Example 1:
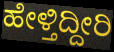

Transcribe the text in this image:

ಹೇಳ್ತಿದ್ದೀರಿ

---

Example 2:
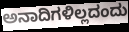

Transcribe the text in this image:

ಅನಾದಿಗಳಿಲ್ಲದಂದು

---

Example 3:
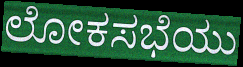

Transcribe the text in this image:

ಲೋಕಸಭೆಯು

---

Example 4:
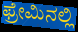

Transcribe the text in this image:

ಫ್ರೇಮಿನಲ್ಲಿ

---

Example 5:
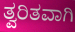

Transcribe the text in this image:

ತ್ವರಿತವಾಗಿ